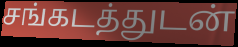
சங்கடத்துடன்